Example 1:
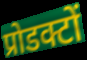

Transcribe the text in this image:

प्रोडक्टों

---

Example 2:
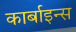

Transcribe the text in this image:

कार्बाइन्स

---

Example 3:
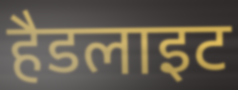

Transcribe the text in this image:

हैडलाइट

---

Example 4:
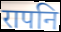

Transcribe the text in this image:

रापनि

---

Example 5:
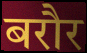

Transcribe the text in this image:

बरौर